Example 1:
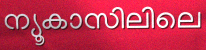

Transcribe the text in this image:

ന്യൂകാസിലിലെ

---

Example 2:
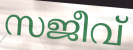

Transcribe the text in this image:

സജീവ്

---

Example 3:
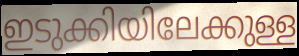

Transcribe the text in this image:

ഇടുക്കിയിലേക്കുള്ള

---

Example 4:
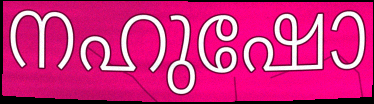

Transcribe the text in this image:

നഹുഷോ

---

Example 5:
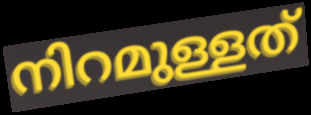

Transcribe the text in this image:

നിറമുള്ളത്